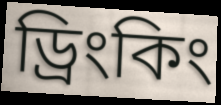
ড্রিংকিং